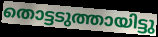
തൊട്ടടുത്തായിട്ടു